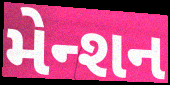
મેન્શન